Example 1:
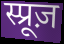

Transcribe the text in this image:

स्प्रूज़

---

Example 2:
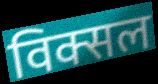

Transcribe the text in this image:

विक्सल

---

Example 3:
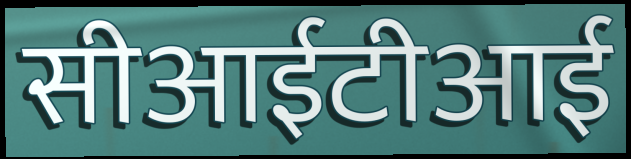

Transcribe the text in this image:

सीआईटीआई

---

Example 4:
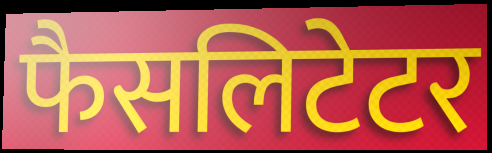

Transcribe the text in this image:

फैसलिटेटर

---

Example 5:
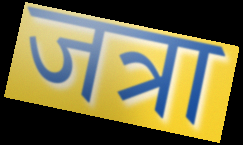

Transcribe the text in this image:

जत्रा